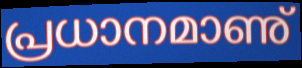
പ്രധാനമാണു്